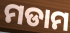
ମଡାମ